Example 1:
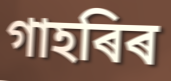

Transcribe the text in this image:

গাহৰিৰ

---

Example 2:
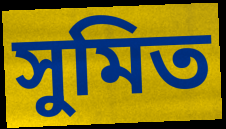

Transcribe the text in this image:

সুমিত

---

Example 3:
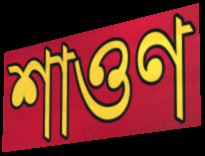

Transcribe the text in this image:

শাওণ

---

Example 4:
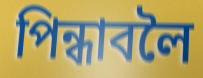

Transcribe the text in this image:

পিন্ধাবলৈ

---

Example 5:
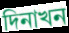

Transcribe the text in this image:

দিনাখন